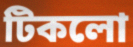
টিকলো